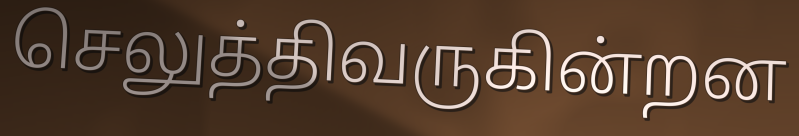
செலுத்திவருகின்றன